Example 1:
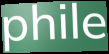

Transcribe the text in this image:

phile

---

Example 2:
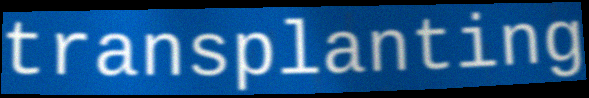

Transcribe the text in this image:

transplanting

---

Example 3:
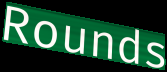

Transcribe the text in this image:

Rounds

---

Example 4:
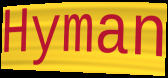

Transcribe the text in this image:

Hyman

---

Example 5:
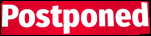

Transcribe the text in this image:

Postponed